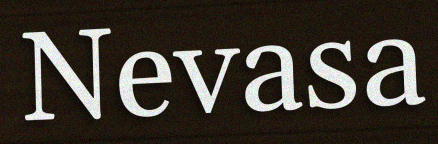
Nevasa